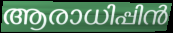
ആരാധിപ്പിൻ